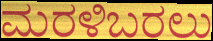
ಮರಳಿಬರಲು